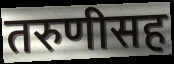
तरुणीसह